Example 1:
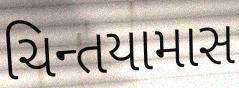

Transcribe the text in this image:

ચિન્તયામાસ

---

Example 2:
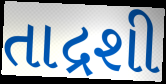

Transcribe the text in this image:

તાદ્રશી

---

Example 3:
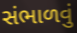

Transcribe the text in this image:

સંભાળવું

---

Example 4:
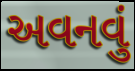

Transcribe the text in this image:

અવનવું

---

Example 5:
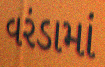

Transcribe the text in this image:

વરંડામાં